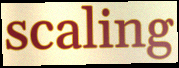
scaling